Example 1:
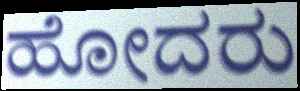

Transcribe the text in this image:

ಹೋದರು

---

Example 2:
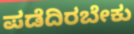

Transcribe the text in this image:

ಪಡೆದಿರಬೇಕು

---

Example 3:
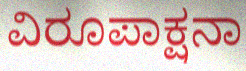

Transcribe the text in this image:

ವಿರೂಪಾಕ್ಷನಾ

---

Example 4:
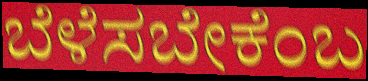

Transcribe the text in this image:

ಬೆಳೆಸಬೇಕೆಂಬ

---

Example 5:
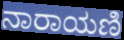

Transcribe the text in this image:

ನಾರಾಯಣಿ